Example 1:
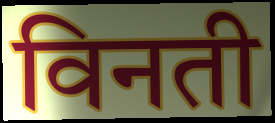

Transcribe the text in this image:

विनती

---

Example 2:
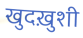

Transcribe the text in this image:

खुदख़ुशी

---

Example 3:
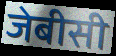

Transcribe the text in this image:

जेबीसी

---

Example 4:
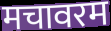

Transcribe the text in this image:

मचावरम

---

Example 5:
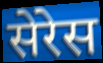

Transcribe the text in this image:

सेरेस